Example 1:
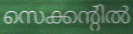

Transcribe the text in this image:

സെക്കന്റിൽ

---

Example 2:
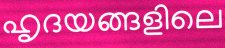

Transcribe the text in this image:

ഹൃദയങ്ങളിലെ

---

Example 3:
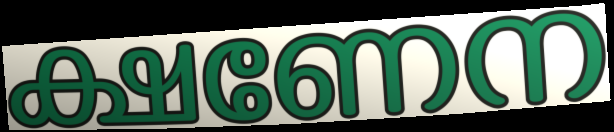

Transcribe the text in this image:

ക്ഷണേന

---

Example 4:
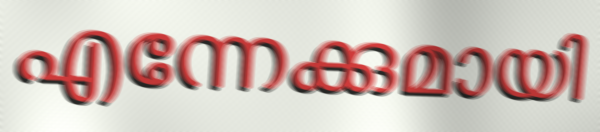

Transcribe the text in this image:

എന്നേക്കുമായി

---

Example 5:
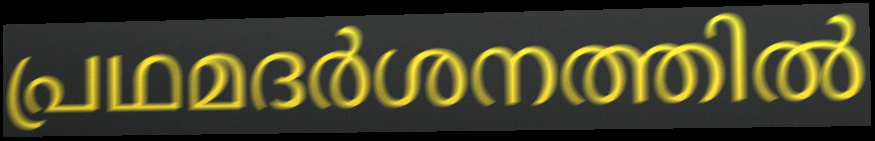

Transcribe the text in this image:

പ്രഥമദർശനത്തിൽ